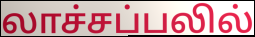
லாச்சப்பலில்